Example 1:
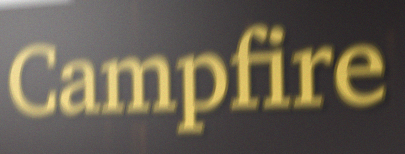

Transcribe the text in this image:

Campfire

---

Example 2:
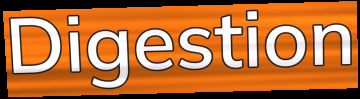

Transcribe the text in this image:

Digestion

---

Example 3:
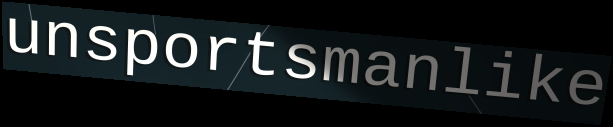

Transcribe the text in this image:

unsportsmanlike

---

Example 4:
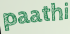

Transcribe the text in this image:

paathi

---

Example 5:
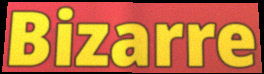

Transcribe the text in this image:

Bizarre